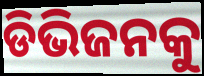
ଡିଭିଜନକୁ